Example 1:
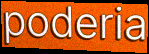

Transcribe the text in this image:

poderia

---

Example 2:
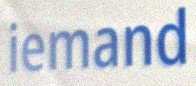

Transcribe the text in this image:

iemand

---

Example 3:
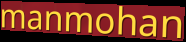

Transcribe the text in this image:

manmohan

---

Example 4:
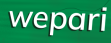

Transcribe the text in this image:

wepari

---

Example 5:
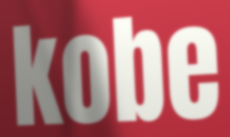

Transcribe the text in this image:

kobe